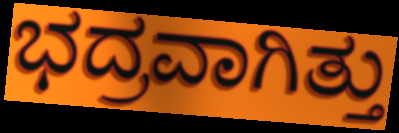
ಭದ್ರವಾಗಿತ್ತು